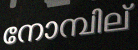
നോമ്പില്